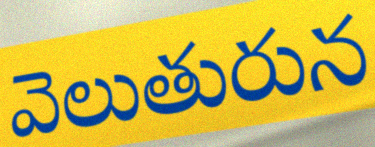
వెలుతురున